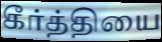
கீர்த்தியை